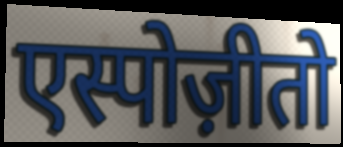
एस्पोज़ीतो